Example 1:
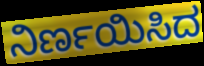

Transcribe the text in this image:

ನಿರ್ಣಯಿಸಿದ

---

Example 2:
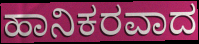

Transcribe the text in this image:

ಹಾನಿಕರವಾದ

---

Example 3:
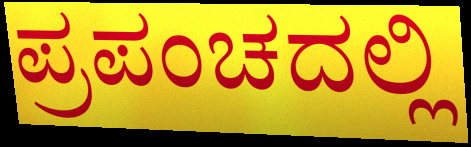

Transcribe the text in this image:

ಪ್ರಪಂಚದಲ್ಲಿ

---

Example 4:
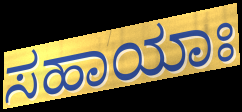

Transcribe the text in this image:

ಸಹಾಯಾಃ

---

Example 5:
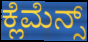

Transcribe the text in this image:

ಕ್ಲೆಮೆನ್ಸ್